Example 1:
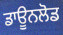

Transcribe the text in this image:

ਡਾਊਨਲੋਡ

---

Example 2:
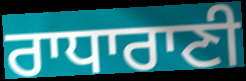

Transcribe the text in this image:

ਰਾਧਾਰਾਣੀ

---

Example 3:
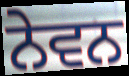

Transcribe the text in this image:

ਨੇਵਨ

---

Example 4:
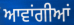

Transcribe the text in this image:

ਆਵਾਂਗੀਆਂ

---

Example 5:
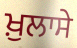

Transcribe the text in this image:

ਖ਼ੁਲਾਸੇ